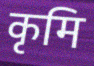
कृमि